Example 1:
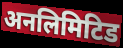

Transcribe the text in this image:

अनलिमिटिड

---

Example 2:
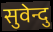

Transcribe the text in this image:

सुवेन्दु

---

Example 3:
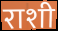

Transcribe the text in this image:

राशी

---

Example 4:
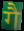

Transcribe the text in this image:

गै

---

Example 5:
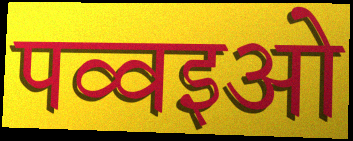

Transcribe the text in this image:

पव्वइओ